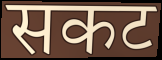
सकट